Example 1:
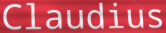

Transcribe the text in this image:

Claudius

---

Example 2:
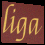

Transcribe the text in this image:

liga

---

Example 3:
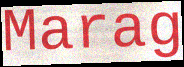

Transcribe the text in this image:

Marag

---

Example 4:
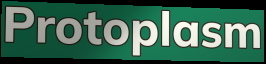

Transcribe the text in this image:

Protoplasm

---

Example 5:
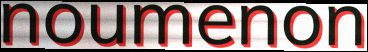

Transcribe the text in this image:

noumenon